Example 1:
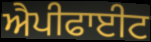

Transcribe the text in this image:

ਐਪੀਫਾਈਟ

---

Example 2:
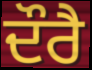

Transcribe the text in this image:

ਦੌਰੈ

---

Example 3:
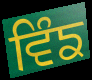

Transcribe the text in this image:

ਵਿੰਙ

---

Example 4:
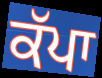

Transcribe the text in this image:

ਕੱਪਾ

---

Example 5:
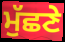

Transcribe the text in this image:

ਮੁੱਛਣੇ